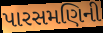
પારસમણિની